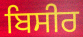
ਬਿਸੀਰ